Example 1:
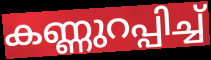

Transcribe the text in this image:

കണ്ണുറപ്പിച്ച്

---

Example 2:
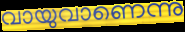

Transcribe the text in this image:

വായുവാണെന്നു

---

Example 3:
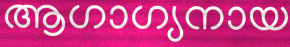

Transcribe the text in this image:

ആഗാഗ്യനായ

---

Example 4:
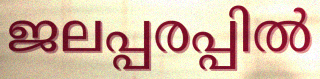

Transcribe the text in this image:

ജലപ്പരപ്പിൽ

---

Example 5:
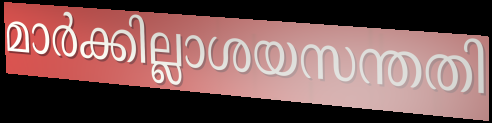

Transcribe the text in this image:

മാർക്കില്ലാശയസന്തതി